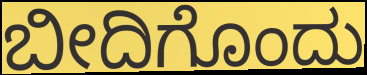
ಬೀದಿಗೊಂದು